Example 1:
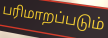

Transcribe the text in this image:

பரிமாறப்படும்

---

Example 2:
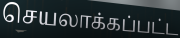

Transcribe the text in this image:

செயலாக்கப்பட்ட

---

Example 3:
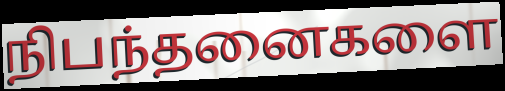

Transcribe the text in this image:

நிபந்தனைகளை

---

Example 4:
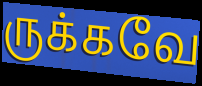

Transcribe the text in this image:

ருக்கவே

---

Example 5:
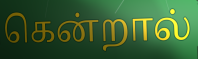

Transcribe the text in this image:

கென்றால்